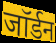
जॉर्डन